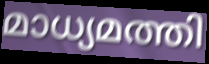
മാധ്യമത്തി